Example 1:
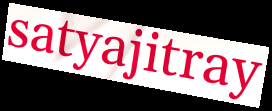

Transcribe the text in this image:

satyajitray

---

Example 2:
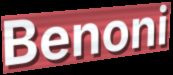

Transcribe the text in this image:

Benoni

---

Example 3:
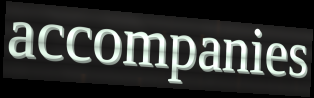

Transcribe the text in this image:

accompanies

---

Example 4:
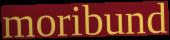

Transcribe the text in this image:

moribund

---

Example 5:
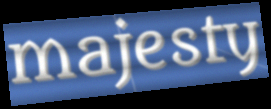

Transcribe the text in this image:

majesty